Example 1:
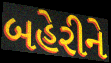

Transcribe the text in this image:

બહેરીને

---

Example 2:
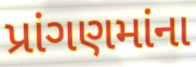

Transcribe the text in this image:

પ્રાંગણમાંના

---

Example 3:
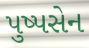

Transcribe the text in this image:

પુષ્પસેન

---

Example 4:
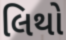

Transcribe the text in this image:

લિથો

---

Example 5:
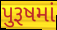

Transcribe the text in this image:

પુરૂષમાં